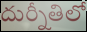
దుర్నీతిలో